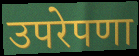
उपरेपणा